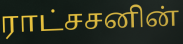
ராட்சசனின்